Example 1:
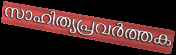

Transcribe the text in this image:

സാഹിത്യപ്രവർത്തക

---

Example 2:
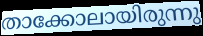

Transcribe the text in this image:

താക്കോലായിരുന്നു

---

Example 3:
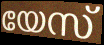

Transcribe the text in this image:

യേസ്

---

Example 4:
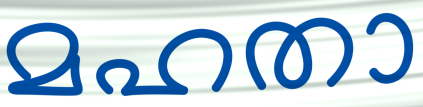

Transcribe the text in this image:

മഹതാ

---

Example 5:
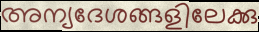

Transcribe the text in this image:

അന്യദേശങ്ങളിലേക്കു